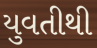
યુવતીથી